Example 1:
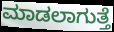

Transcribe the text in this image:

ಮಾಡಲಾಗುತ್ತೆ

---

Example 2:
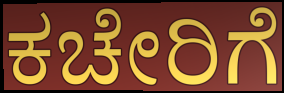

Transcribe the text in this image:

ಕಚೇರಿಗೆ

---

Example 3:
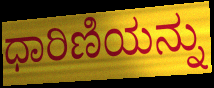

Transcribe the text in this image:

ಧಾರಿಣಿಯನ್ನು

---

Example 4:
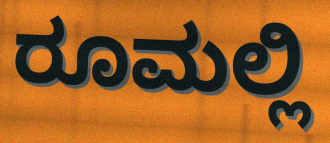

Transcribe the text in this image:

ರೂಮಲ್ಲಿ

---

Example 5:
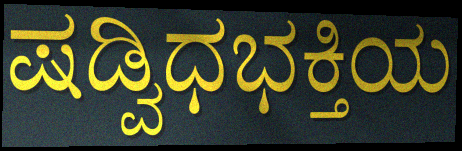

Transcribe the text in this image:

ಷಡ್ವಿಧಭಕ್ತಿಯ